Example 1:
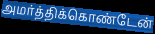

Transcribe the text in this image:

அமர்த்திக்கொண்டேன்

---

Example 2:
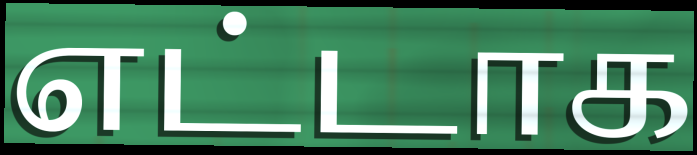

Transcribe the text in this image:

எட்டாக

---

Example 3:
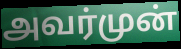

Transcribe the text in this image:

அவர்முன்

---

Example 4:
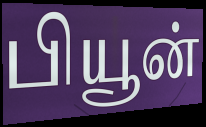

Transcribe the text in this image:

பியூன்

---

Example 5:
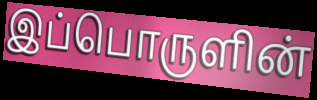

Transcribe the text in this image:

இப்பொருளின்